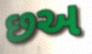
છઅ